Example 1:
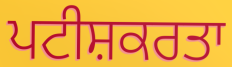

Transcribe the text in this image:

ਪਟੀਸ਼ਕਰਤਾ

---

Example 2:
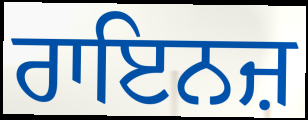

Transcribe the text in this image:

ਰਾਇਨਜ਼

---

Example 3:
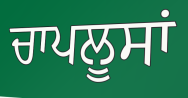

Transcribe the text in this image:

ਚਾਪਲੂਸਾਂ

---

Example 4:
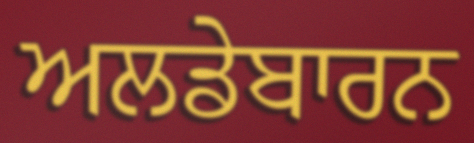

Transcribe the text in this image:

ਅਲਡੇਬਾਰਨ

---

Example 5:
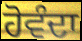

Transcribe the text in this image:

ਹੋਵੰਦਾ